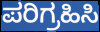
ಪರಿಗ್ರಹಿಸಿ